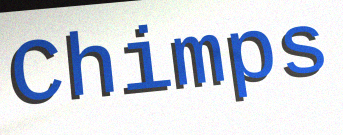
Chimps